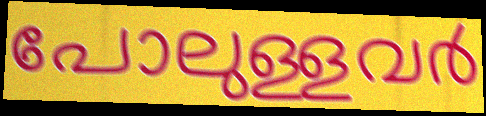
പോലുള്ളവർ